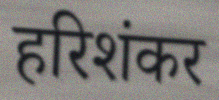
हरिशंकर